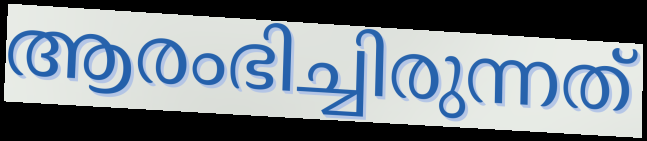
ആരംഭിച്ചിരുന്നത്